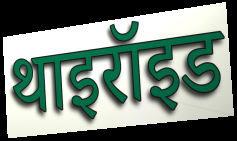
थाइरॉइड